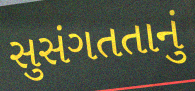
સુસંગતતાનું